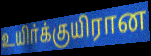
உயிர்க்குயிரான